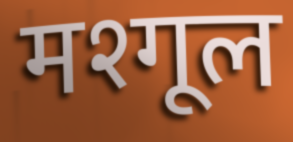
मश्गूल